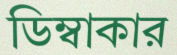
ডিম্বাকার